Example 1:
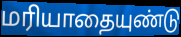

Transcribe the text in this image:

மரியாதையுண்டு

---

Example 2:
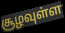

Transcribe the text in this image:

சூழவுள்ள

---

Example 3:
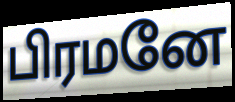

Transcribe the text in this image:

பிரமனே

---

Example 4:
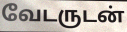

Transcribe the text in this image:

வேடருடன்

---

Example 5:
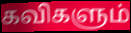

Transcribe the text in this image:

கவிகளும்